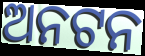
ଅନଟନ